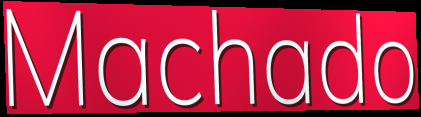
Machado